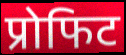
प्रोफिट